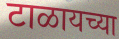
टाळायच्या